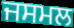
ਜਸਮਲ